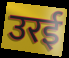
उरई